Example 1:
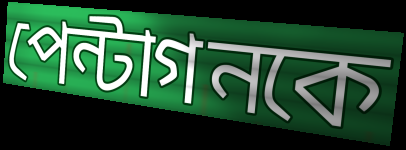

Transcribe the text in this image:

পেন্টাগনকে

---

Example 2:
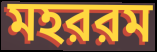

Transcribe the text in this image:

মহররম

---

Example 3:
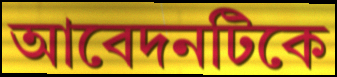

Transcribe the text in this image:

আবেদনটিকে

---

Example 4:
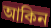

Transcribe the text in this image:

আকিন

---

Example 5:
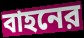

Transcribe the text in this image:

বাহনের